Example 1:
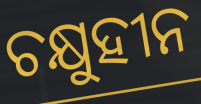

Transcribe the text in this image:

ଚକ୍ଷୁହୀନ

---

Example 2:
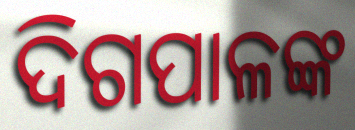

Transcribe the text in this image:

ଦିଗପାଳଙ୍କ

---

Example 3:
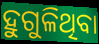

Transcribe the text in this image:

ହୁଗୁଳିଥିବା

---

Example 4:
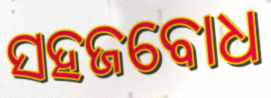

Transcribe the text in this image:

ସହଜବୋଧ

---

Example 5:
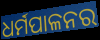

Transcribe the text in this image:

ଧର୍ମପାଳନର